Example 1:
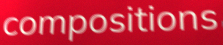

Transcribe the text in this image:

compositions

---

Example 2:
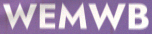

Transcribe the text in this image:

WEMWB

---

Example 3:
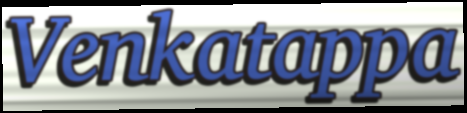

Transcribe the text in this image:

Venkatappa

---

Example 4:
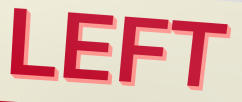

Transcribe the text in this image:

LEFT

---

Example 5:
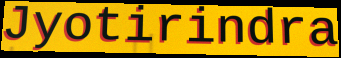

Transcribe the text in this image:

Jyotirindra